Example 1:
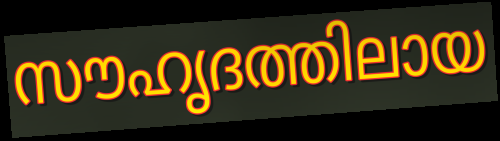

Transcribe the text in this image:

സൗഹൃദത്തിലായ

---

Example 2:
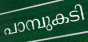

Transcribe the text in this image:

പാമ്പുകടി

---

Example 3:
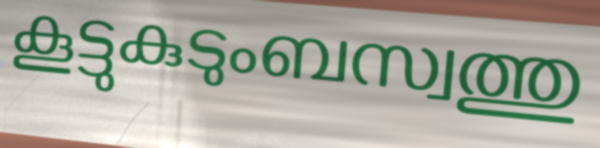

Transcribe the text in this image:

കൂട്ടുകുടുംബസ്വത്തു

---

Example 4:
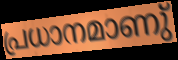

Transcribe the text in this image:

പ്രധാനമാണു്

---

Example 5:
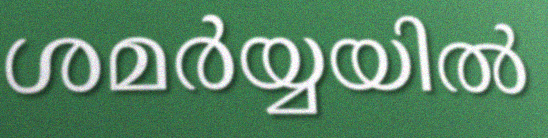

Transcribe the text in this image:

ശമർയ്യയിൽ